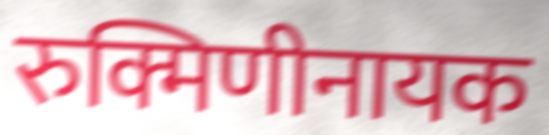
रुक्मिणीनायक